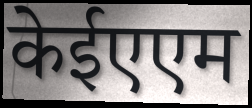
केईएएम